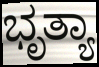
ಭೃತ್ಯಾ